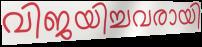
വിജയിച്ചവരായി